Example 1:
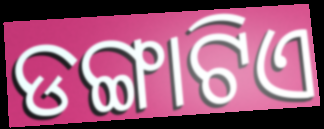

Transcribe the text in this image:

ଡଙ୍ଗାଟିଏ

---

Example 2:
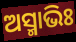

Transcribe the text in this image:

ଅସ୍ମାଭିଃ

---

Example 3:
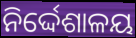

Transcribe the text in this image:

ନିର୍ଦ୍ଦେଶାଳୟ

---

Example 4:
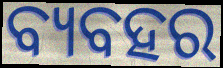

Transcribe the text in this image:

ବ୍ଯବହର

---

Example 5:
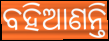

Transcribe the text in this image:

ବହିଆଣନ୍ତି